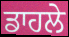
ਡਾਹਲੇ